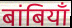
बांबियाँ